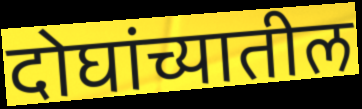
दोघांच्यातील